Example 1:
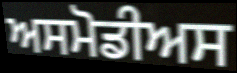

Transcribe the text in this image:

ਅਸਮੋਡੀਅਸ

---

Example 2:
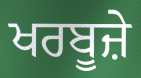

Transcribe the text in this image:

ਖਰਬੂਜ਼ੇ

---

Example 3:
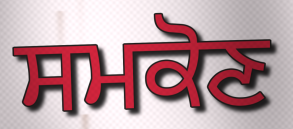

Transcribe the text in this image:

ਸਮਕੋਣ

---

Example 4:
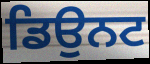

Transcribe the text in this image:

ਡਿਉਨਟ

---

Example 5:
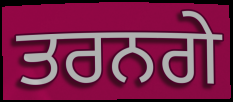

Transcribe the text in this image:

ਤਰਨਗੇ